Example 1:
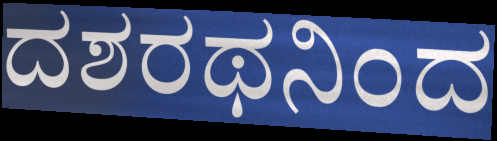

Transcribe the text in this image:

ದಶರಥನಿಂದ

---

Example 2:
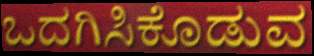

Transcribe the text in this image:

ಒದಗಿಸಿಕೊಡುವ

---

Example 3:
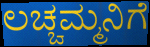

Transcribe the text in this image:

ಲಚ್ಚಮ್ಮನಿಗೆ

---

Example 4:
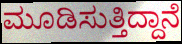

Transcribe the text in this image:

ಮೂಡಿಸುತ್ತಿದ್ದಾನೆ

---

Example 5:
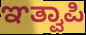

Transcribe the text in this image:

ಞತ್ವಾಪಿ